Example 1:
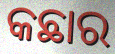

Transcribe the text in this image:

କଛାର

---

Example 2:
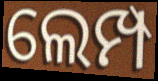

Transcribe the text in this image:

ଲେମ୍ପ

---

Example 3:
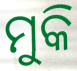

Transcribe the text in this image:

ମୁକି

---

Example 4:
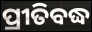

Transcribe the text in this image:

ପ୍ରୀତିବଦ୍ଧ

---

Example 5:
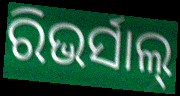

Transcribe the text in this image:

ରିଭର୍ସାଲ୍